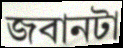
জবানটা